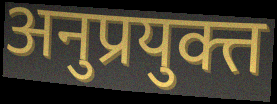
अनुप्रयुक्त